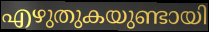
എഴുതുകയുണ്ടായി